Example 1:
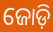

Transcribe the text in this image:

ଜୋଡ଼ି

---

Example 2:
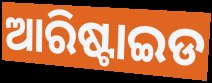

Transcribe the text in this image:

ଆରିଷ୍ଟାଇଡ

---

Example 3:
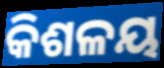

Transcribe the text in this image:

କିଶଳୟ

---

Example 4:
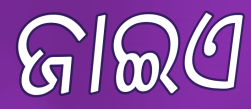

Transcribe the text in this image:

ଜାଇଏ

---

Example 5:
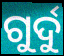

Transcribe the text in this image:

ଗୁର୍ଦୁ